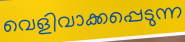
വെളിവാക്കപ്പെടുന്ന